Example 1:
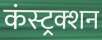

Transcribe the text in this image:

कंस्‍ट्रक्‍शन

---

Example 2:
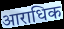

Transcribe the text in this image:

आराधिक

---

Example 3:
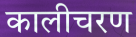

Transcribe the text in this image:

कालीचरण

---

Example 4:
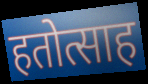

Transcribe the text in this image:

हतोत्साह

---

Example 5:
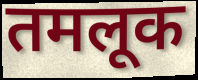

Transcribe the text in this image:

तमलूक